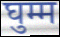
घुम्म